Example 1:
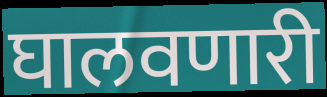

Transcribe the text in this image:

घालवणारी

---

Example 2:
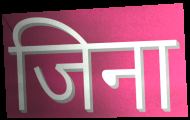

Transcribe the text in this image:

जिना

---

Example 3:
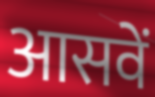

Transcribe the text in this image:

आसवें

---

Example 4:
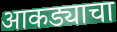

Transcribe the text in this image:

आकड्याचा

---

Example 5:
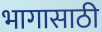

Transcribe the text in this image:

भागासाठी